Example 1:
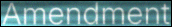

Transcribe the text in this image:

Amendment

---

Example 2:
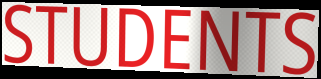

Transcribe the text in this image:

STUDENTS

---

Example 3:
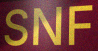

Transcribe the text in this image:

SNF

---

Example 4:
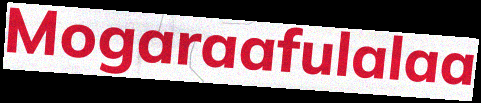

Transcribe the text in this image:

Mogaraafulalaa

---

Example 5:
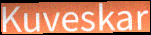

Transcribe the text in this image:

Kuveskar